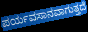
ಪರ್ಯವಸಾನವಾಗುತ್ತದೆ